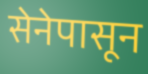
सेनेपासून